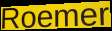
Roemer